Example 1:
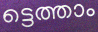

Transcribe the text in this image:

ട്ടെത്താം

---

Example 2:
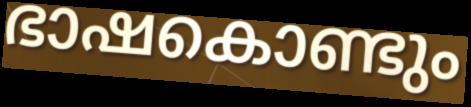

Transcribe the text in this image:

ഭാഷകൊണ്ടും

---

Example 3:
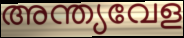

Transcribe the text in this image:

അന്ത്യവേള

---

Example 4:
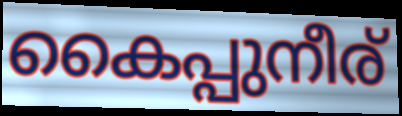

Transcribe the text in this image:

കൈപ്പുനീര്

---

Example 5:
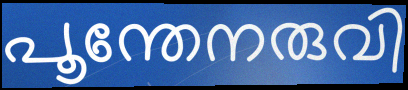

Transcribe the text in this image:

പൂന്തേനരുവി